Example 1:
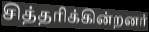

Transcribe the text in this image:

சித்தரிக்கின்றனர்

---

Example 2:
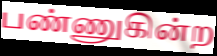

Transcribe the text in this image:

பண்ணுகின்ற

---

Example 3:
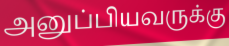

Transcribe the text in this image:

அனுப்பியவருக்கு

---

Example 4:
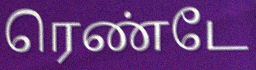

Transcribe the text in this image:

ரெண்டே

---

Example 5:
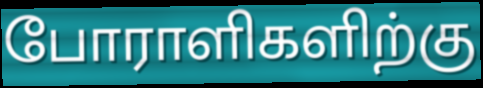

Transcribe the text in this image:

போராளிகளிற்கு